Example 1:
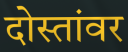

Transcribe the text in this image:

दोस्तांवर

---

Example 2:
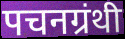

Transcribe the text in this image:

पचनग्रंथी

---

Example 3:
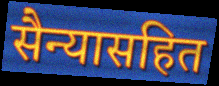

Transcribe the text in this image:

सैन्यासहित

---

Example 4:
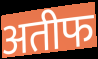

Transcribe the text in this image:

अतीफ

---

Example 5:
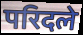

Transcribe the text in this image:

परिदले